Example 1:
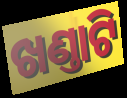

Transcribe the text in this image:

ଖଣ୍ତାଟି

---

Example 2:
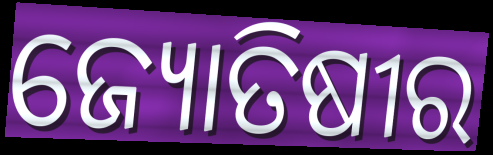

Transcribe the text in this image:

ଜ୍ୟୋତିଷୀର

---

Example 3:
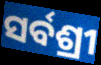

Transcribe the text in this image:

ସର୍ବଶ୍ରୀ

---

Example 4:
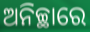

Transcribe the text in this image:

ଅନିଚ୍ଛାରେ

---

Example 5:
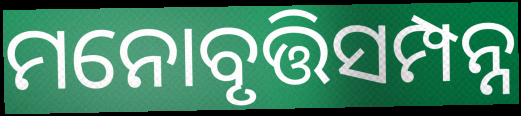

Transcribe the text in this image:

ମନୋବୃତ୍ତିସମ୍ପନ୍ନ